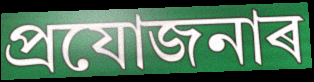
প্ৰযোজনাৰ